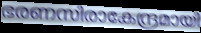
ഭരണസിരാകേന്ദ്രമായി